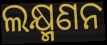
ଲକ୍ଷ୍ମଣନ